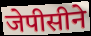
जेपीसीने